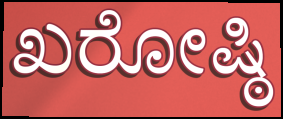
ಖರೋಷ್ಠಿ